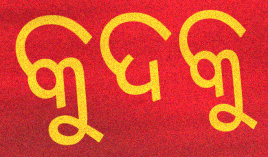
କୁଦକୁ